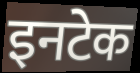
इनटेक